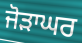
ਜੋੜਾਘਰ